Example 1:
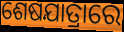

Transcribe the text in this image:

ଶେଷଯାତ୍ରାରେ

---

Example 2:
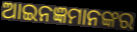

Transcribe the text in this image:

ଆଇନଜ୍ଞମାନଙ୍କର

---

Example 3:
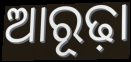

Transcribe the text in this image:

ଆରୂଢ଼ା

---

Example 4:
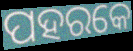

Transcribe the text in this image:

ପହରକେ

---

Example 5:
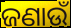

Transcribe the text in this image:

ଜଣାଉଁ